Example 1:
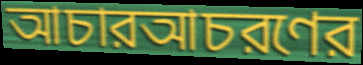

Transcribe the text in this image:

আচারআচরণের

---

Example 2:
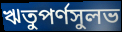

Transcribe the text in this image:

ঋতুপর্ণসুলভ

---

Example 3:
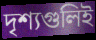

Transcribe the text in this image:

দৃশ্যগুলিই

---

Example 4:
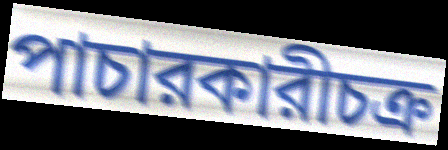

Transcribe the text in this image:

পাচারকারীচক্র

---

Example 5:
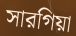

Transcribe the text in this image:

সারগিয়া